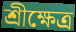
শ্রীক্ষেত্র